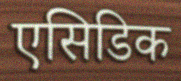
एसिडिक